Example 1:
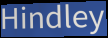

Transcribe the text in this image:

Hindley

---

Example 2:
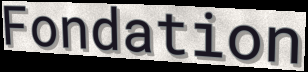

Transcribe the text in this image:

Fondation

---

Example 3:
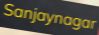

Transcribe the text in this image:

Sanjaynagar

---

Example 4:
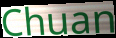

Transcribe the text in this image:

Chuan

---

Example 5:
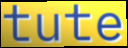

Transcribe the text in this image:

tute